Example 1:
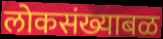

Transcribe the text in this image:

लोकसंख्याबळ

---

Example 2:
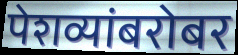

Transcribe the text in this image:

पेशव्यांबरोबर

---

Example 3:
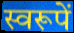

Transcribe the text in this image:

स्वरूपें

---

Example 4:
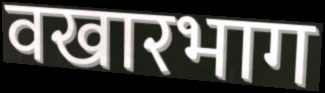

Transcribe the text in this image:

वखारभाग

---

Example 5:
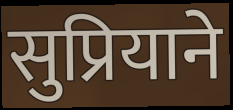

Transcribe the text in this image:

सुप्रियाने